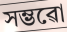
সম্ভৱো